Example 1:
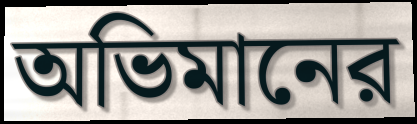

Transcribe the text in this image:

অভিমানের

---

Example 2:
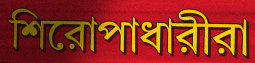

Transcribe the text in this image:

শিরোপাধারীরা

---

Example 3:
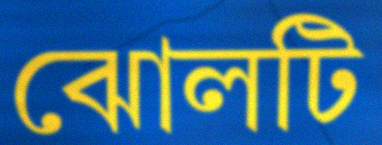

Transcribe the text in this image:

ঝোলটি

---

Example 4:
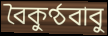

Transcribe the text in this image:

বৈকুণ্ঠবাবু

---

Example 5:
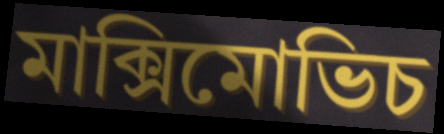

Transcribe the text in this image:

মাক্সিমোভিচ